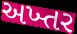
અખ્તર